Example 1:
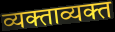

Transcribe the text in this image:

व्यक्ताव्यक्त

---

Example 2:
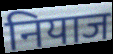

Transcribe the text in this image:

नियाज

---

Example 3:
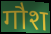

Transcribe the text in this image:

गौश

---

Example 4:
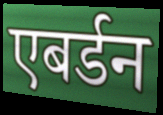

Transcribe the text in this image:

एबर्डन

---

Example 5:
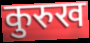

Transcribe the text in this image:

कुरुख